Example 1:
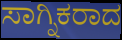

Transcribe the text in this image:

ಸಾಗ್ನಿಕರಾದ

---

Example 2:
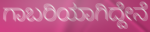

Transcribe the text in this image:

ಗಾಬರಿಯಾಗಿದ್ದೇನೆ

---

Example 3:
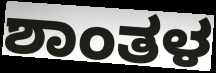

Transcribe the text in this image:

ಶಾಂತಳ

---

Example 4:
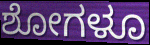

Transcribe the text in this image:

ಶೋಗಳೂ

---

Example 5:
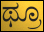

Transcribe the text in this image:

ಥ್ರೂ